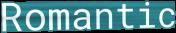
Romantic